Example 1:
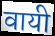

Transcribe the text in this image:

वायी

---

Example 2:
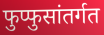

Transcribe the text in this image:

फुप्फुसांतर्गत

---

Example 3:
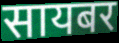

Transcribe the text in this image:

सायबर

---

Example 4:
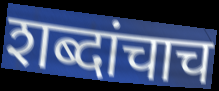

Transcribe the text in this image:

शब्दांचाच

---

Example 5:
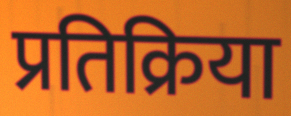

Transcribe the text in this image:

प्रतिक्रिया